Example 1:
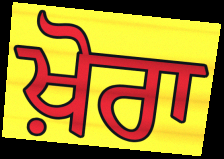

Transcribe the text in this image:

ਖ਼ੋਰਾ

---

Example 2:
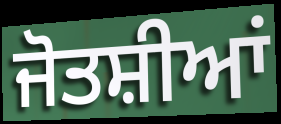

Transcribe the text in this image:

ਜੋਤਸ਼ੀਆਂ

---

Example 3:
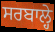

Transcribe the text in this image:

ਸਰਬਾਲ੍ਹੇ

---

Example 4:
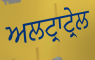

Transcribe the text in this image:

ਅਲਟ੍ਰਾਟ੍ਰੇਲ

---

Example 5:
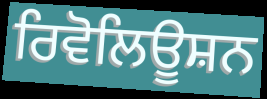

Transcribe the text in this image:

ਰਿਵੋਲਿਊਸ਼ਨ